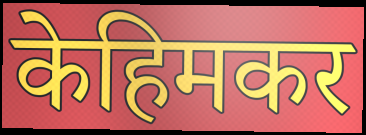
केहिमकर